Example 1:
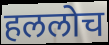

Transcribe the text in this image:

हललोच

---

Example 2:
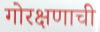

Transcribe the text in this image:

गोरक्षणाची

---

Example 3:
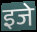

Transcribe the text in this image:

इजे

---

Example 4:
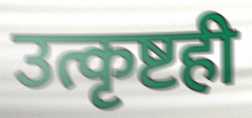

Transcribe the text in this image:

उत्कृष्टही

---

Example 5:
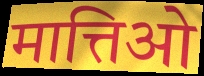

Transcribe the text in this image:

मात्तिओ